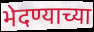
भेदण्याच्या